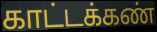
காட்டக்கண்